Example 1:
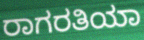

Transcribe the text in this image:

ರಾಗರತಿಯಾ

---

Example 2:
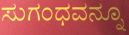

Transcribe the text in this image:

ಸುಗಂಧವನ್ನೂ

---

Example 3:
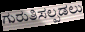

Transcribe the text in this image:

ಗುರುತಿಸಲ್ಪಡಲು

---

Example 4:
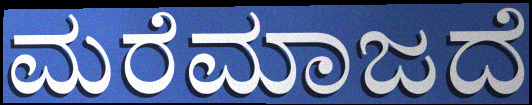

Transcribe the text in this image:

ಮರೆಮಾಜದೆ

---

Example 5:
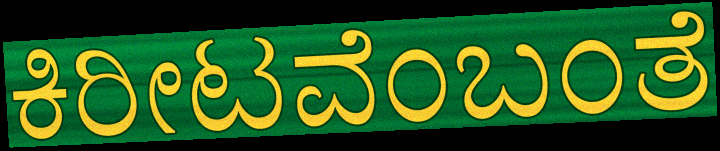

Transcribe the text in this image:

ಕಿರೀಟವೆಂಬಂತೆ